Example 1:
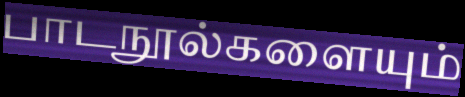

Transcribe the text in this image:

பாடநூல்களையும்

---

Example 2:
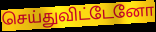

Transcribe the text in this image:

செய்துவிட்டேனோ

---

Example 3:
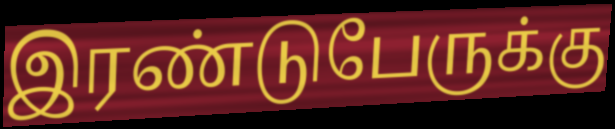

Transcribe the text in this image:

இரண்டுபேருக்கு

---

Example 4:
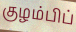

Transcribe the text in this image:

குழம்பிப்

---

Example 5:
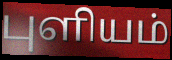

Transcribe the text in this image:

புளியம்